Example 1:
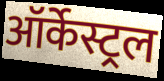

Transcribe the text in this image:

ऑर्केस्ट्रल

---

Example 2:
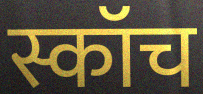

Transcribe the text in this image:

स्कॉच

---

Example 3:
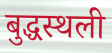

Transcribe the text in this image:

बुद्धस्थली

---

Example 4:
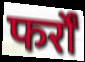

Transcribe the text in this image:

फर्रों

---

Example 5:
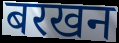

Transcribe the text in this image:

बरखन